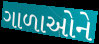
ગાળાઓને